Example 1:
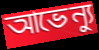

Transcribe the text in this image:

আভেন্যু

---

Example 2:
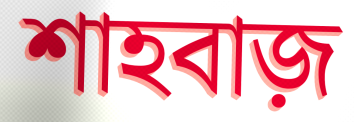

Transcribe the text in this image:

শাহবাজ়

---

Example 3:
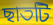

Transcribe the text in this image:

ছাতটি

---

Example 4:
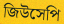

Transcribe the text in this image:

জিউসেপি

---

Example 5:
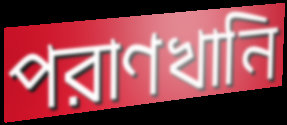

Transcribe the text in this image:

পরাণখানি